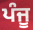
ਪੰਜੂ